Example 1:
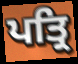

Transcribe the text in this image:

ਪਤ੍ਰਿ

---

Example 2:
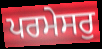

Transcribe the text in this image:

ਪਰਮੇਸਰੁ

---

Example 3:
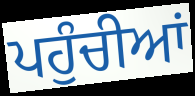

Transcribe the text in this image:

ਪਹੁੰਚੀਆਂ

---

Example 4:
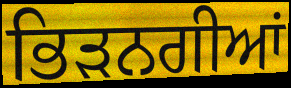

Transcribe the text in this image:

ਭਿੜਨਗੀਆਂ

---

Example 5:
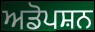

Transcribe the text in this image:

ਅਡੋਪਸ਼ਨ